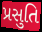
પ્રસુતિ